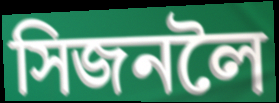
সিজনলৈ